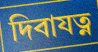
দিবাযত্ন